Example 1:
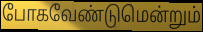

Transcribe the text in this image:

போகவேண்டுமென்றும்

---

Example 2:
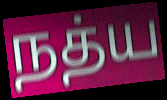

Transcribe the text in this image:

நத்ய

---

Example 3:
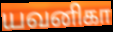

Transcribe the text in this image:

யவனிகா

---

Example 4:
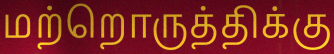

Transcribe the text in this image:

மற்றொருத்திக்கு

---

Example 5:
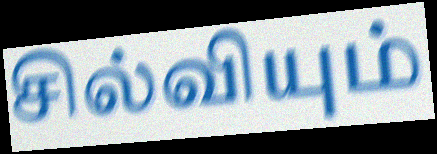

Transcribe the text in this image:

சில்வியும்